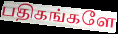
பதிகங்களே